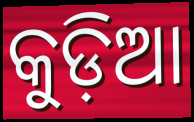
କୁଡ଼ିଆ